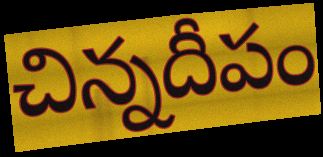
చిన్నదీపం